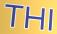
THI